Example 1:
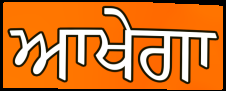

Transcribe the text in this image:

ਆਖੇਗਾ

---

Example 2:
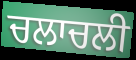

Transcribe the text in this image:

ਚਲਾਚਲੀ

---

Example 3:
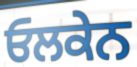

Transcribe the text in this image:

ਓਲਕੇਨ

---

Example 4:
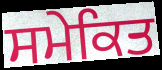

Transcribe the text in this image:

ਸਮੇਕਿਤ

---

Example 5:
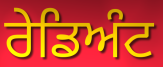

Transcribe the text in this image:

ਰੇਡਿਅੰਟ